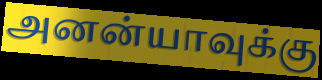
அனன்யாவுக்கு